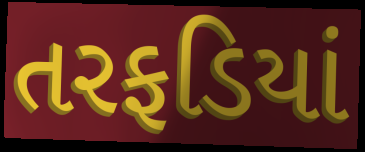
તરફડિયાં